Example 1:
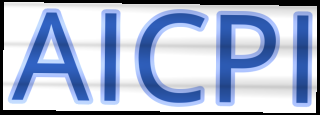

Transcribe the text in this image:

AICPI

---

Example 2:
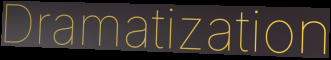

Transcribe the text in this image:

Dramatization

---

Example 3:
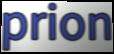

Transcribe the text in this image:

prion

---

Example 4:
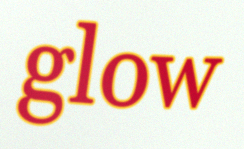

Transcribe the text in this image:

glow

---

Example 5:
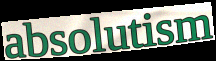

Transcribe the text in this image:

absolutism